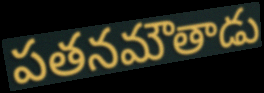
పతనమౌతాడు